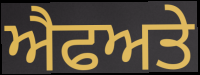
ਐਫਅਤੇ